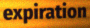
expiration